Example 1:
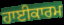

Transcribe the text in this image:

ਹਾਈਕਾਰਮ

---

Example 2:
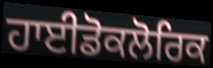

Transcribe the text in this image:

ਹਾਈਡੋਕਲੋਰਿਕ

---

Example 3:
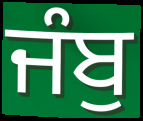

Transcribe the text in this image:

ਜੰਬੁ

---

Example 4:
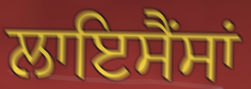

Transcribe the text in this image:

ਲਾਇਸੈਂਸਾਂ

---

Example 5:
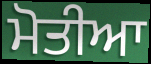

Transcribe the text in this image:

ਮੋਤੀਆ